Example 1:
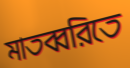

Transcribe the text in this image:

মাতব্বরিতে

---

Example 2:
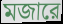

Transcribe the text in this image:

মজারে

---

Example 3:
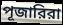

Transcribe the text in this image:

পূজারিরা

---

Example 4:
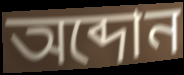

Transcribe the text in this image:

অব্দোন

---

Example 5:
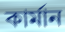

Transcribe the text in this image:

কার্মান